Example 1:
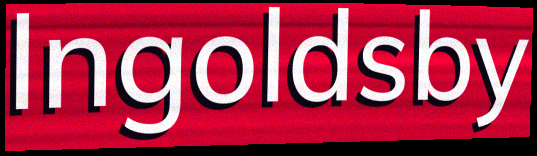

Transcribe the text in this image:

Ingoldsby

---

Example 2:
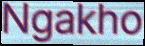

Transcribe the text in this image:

Ngakho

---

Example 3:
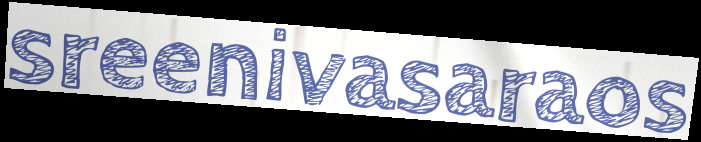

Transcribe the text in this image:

sreenivasaraos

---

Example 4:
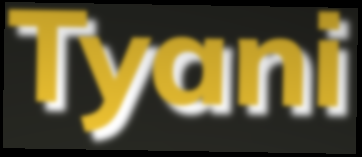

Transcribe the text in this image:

Tyani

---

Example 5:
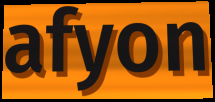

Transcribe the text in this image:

afyon